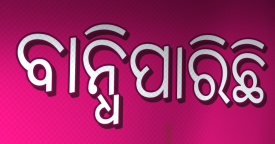
ବାନ୍ଧିପାରିଛି